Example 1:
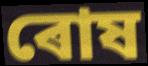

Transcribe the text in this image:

ৰোষ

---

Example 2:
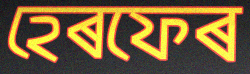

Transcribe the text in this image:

হেৰফেৰ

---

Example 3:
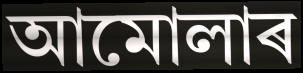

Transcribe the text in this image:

আমোলাৰ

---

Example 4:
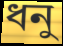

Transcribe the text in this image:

ধনু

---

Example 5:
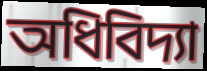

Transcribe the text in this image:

অধিবিদ্যা